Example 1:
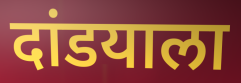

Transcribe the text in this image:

दांडयाला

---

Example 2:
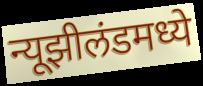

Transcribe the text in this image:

न्यूझीलंडमध्ये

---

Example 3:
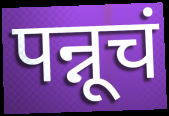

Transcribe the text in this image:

पन्नूचं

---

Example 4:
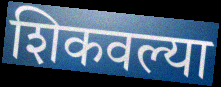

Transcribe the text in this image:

शिकवल्या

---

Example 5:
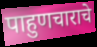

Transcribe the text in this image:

पाहुणचाराचे